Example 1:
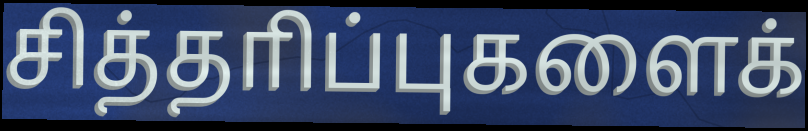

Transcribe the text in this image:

சித்தரிப்புகளைக்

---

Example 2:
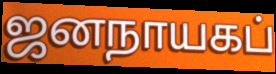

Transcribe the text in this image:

ஜனநாயகப்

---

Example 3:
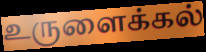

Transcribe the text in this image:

உருளைக்கல்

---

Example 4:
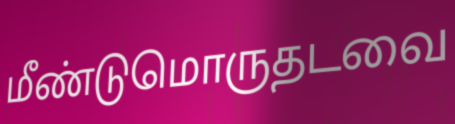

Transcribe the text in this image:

மீண்டுமொருதடவை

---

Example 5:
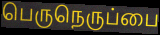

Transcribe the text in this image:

பெருநெருப்பை